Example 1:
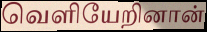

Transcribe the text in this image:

வெளியேறினான்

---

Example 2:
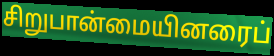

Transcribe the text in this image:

சிறுபான்மையினரைப்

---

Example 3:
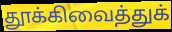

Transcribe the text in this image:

தூக்கிவைத்துக்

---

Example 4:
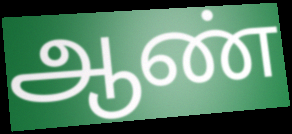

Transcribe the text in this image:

ஆண்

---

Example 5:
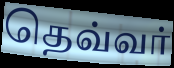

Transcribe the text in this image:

தெவ்வர்